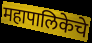
महापालिकेचे